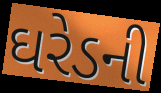
ઘરેડની